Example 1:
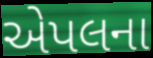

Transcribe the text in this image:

એપલના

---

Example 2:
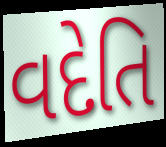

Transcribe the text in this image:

વદેતિ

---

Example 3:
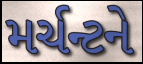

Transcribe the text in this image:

મર્ચન્ટને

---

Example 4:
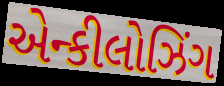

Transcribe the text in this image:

એન્કીલોઝિંગ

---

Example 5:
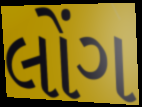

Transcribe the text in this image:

લોંગ